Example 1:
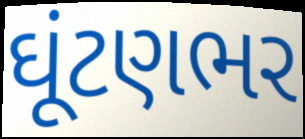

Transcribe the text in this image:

ઘૂંટણભર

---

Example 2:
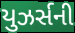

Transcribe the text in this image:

યુઝર્સની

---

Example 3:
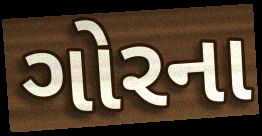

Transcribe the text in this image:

ગોરના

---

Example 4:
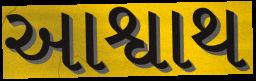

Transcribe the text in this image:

આશ્વાથ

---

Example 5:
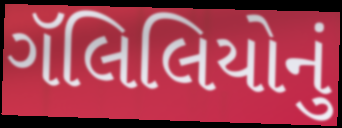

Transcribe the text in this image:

ગૅલિલિયોનું